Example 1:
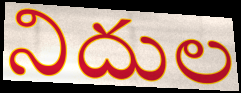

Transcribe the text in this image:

నిదుల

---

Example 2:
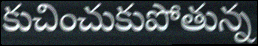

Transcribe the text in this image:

కుచించుకుపోతున్న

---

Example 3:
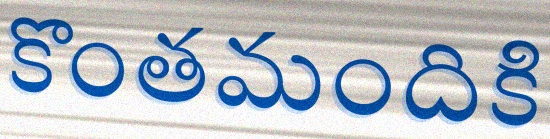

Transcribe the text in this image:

కొంతమందికి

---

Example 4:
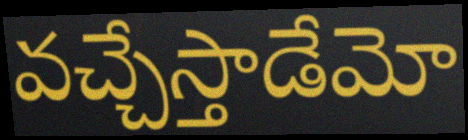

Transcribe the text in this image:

వచ్చేస్తాడేమో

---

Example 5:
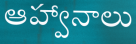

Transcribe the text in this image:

ఆహ్వానాలు